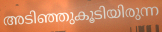
അടിഞ്ഞുകൂടിയിരുന്ന